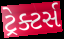
ટ્રેક્ટર્સ